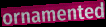
ornamented